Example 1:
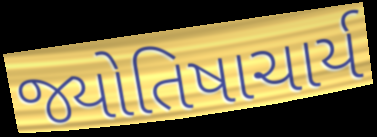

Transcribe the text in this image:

જ્યોતિષાચાર્ય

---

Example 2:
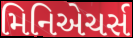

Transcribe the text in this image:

મિનિએચર્સ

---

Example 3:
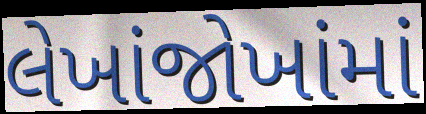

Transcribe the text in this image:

લેખાંજોખાંમાં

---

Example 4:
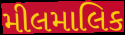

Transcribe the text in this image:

મીલમાલિક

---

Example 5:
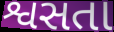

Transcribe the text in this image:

શ્વસતા